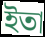
ইতা